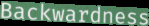
Backwardness